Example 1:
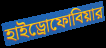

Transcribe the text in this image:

হাইড্রোফোবিয়ার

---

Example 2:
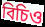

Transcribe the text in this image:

বিচিও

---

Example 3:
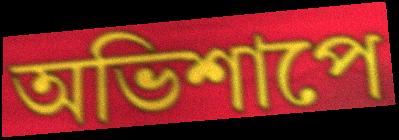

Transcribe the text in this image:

অভিশাপে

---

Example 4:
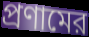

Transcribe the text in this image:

প্রণামের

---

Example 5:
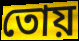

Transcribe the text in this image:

তোয়